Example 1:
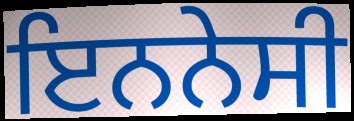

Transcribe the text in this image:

ਇਨਨੇਸੀ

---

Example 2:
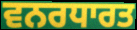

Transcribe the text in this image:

ਵਨਰਧਾਰਤ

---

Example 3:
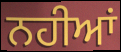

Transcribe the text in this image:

ਨਹੀਆਂ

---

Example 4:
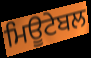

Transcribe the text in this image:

ਮਿਊਟੇਬਲ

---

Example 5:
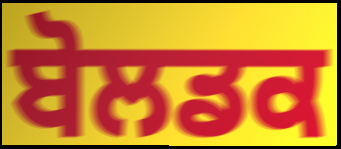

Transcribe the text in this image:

ਬੋਲਡਕ